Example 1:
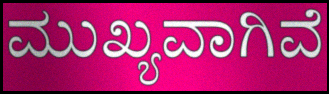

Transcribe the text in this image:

ಮುಖ್ಯವಾಗಿವೆ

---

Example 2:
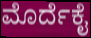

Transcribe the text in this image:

ಮೊರ್ದೆಕೈ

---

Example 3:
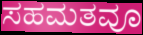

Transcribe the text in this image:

ಸಹಮತವೂ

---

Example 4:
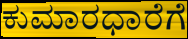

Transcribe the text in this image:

ಕುಮಾರಧಾರೆಗೆ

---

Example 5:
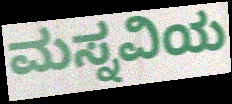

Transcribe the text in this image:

ಮಸ್ನವಿಯ